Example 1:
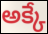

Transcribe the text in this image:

అక్కే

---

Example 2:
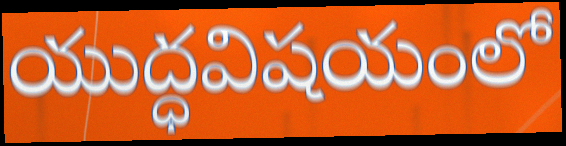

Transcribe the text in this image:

యుద్ధవిషయంలో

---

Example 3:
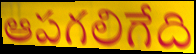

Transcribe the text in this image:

ఆపగలిగేది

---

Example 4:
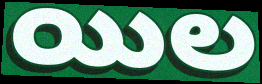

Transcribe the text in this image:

యిల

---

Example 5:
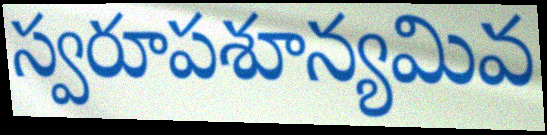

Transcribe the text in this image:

స్వరూపశూన్యమివ